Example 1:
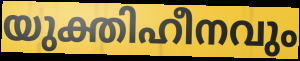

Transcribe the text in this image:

യുക്തിഹീനവും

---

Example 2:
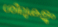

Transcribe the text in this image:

ശീലുകളും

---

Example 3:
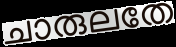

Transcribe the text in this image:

ചാരുലതേ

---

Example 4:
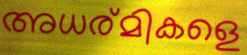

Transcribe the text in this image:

അധര്മികളെ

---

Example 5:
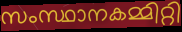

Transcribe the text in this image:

സംസ്ഥാനകമ്മിറ്റി